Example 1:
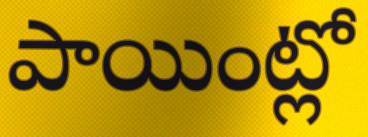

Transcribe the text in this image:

పాయింట్లో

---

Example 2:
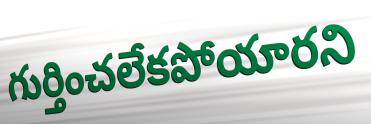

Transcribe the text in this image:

గుర్తించలేకపోయారని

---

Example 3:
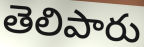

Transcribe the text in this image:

తెలిపారు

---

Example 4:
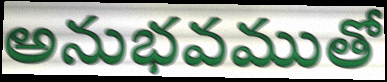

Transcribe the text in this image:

అనుభవముతో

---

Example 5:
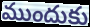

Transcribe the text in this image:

ముందుకు